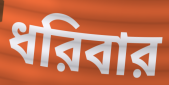
ধরিবার